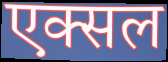
एक्सल